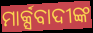
ମାର୍କ୍ସବାଦୀଙ୍କ